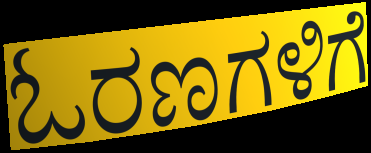
ಓರಣಗಳಿಗೆ